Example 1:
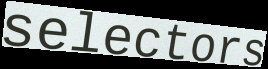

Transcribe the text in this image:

selectors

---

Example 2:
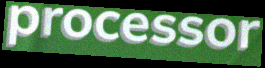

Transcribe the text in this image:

processor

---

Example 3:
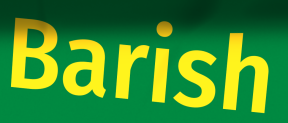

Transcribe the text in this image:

Barish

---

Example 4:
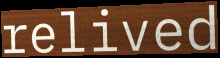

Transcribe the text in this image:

relived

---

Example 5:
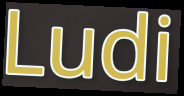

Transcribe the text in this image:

Ludi